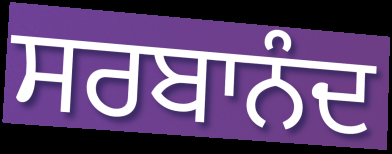
ਸਰਬਾਨੰਦ